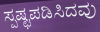
ಸ್ಪಷ್ಟಪಡಿಸಿದವು